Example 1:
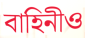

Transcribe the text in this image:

বাহিনীও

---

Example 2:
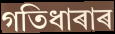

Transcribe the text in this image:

গতিধাৰাৰ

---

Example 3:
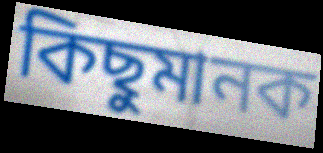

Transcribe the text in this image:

কিছুমানক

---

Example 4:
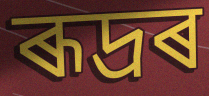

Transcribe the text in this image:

ৰূদ্ৰৰ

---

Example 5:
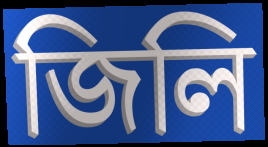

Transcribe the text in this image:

জিলি